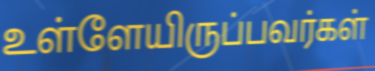
உள்ளேயிருப்பவர்கள்